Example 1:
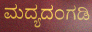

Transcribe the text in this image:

ಮದ್ಯದಂಗಡಿ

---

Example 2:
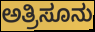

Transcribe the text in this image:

ಅತ್ರಿಸೂನು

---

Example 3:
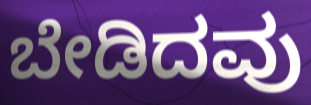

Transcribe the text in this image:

ಬೇಡಿದವು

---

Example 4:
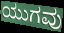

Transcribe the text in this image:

ಯುಗವು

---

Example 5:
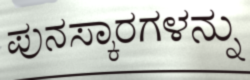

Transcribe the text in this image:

ಪುನಸ್ಕಾರಗಳನ್ನು